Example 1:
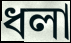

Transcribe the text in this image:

ধলা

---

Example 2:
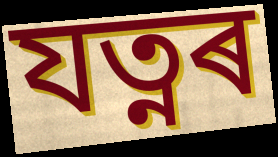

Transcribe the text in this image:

যত্নৰ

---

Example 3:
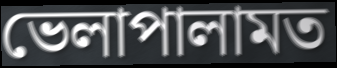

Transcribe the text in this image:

ভেলাপালামত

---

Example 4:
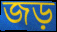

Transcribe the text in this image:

জড়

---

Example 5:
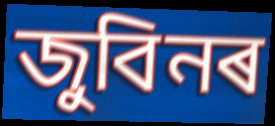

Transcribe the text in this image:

জুবিনৰ